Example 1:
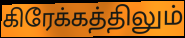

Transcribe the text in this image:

கிரேக்கத்திலும்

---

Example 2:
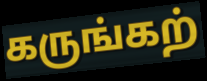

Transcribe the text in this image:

கருங்கற்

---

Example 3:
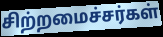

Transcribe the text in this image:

சிற்றமைச்சர்கள்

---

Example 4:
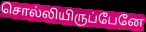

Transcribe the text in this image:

சொல்லியிருப்பேனே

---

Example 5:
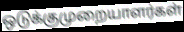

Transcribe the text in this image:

ஒடுக்குமுறையாளர்கள்